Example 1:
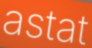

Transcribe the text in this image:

astat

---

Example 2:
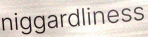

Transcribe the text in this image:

niggardliness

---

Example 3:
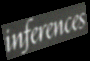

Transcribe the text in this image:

inferences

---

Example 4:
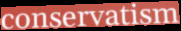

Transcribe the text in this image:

conservatism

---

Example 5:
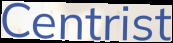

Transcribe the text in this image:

Centrist